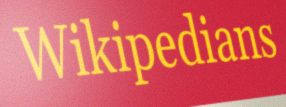
Wikipedians